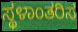
ಸ್ಥಳಾಂತರಿಸ